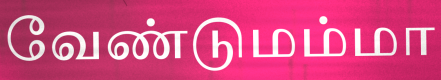
வேண்டுமம்மா